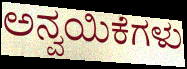
ಅನ್ವಯಿಕೆಗಳು